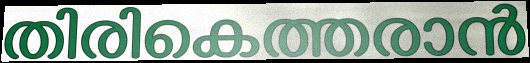
തിരികെത്തരാൻ